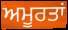
ਅਮੂਰਤਾਂ